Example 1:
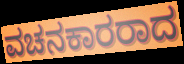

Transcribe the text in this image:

ವಚನಕಾರರಾದ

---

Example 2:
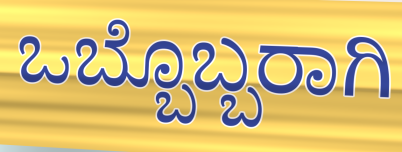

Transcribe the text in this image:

ಒಬ್ಬೊಬ್ಬರಾಗಿ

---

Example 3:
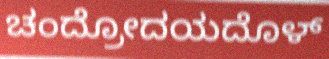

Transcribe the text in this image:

ಚಂದ್ರೋದಯದೊಳ್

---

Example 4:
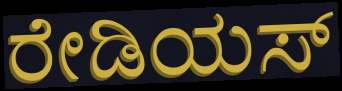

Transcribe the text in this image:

ರೇಡಿಯಸ್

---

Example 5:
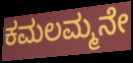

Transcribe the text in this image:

ಕಮಲಮ್ಮನೇ